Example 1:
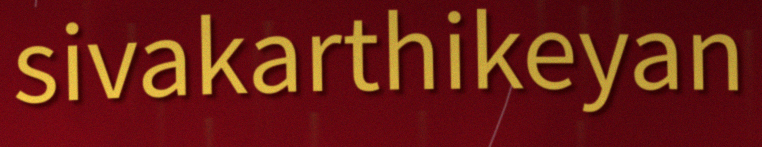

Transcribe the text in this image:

sivakarthikeyan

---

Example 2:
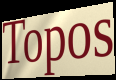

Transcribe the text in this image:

Topos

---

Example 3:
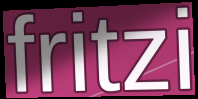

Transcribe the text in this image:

fritzi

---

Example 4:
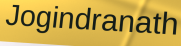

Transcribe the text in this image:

Jogindranath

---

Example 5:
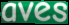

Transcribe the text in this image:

aves